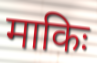
माकिः